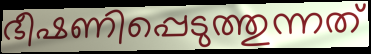
ഭീഷണിപ്പെടുത്തുന്നത്